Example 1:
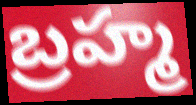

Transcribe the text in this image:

బ్రహ్మ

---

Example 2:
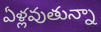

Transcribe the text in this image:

ఏళ్లవుతున్నా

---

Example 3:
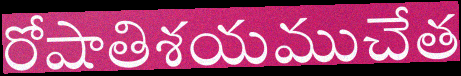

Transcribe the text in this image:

రోషాతిశయముచేత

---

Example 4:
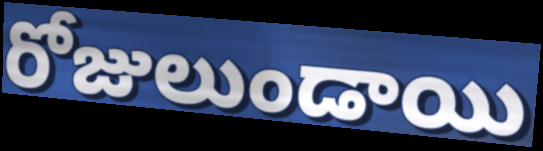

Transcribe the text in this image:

రోజులుండాయి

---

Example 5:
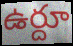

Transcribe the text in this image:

ఉర్దూ